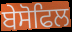
ਬੇਸੋਫਿਲ